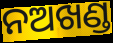
ନଅଖଣ୍ଡ